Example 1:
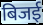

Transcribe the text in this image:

बिजई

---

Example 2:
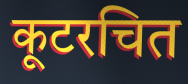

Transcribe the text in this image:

कूटरचित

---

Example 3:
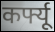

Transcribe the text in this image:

कर्फ्यू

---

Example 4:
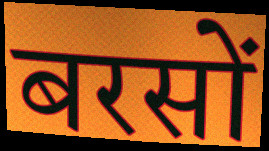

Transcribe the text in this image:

बरसों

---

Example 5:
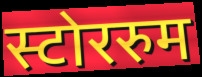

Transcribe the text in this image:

स्टोररुम